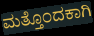
ಮತ್ತೊಂದಕಾಗಿ